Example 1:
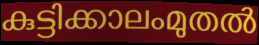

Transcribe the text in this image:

കുട്ടിക്കാലംമുതൽ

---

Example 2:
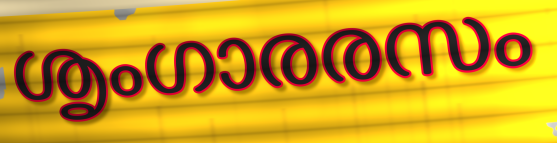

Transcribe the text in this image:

ശൃംഗാരരസം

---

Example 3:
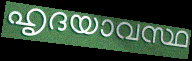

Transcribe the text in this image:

ഹൃദയാവസ്ഥ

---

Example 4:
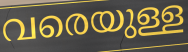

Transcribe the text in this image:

വരെയുള്ള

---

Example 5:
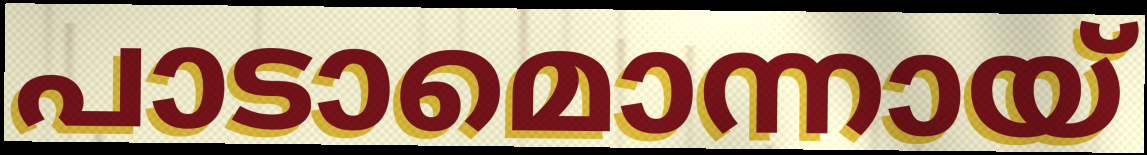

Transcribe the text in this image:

പാടാമൊന്നായ്